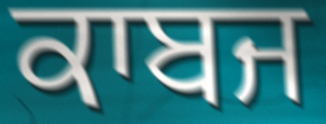
ਕਾਬਜ